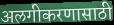
अलगीकरणासाठी